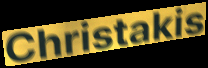
Christakis